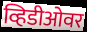
व्हिडीओवर